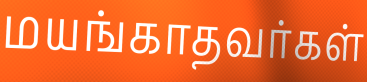
மயங்காதவர்கள்